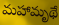
మహామృథే